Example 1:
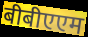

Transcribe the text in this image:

बीबीएएम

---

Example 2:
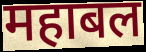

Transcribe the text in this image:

महाबल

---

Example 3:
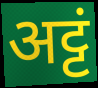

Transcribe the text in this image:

अट्टं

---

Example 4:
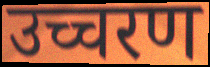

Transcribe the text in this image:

उच्चरण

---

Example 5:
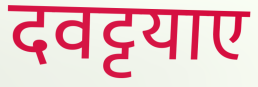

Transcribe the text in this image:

दवट्टयाए